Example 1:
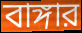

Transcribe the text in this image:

বাঙ্গার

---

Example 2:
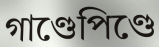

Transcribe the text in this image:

গাণ্ডেপিণ্ডে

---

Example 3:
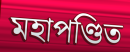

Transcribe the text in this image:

মহাপণ্ডিত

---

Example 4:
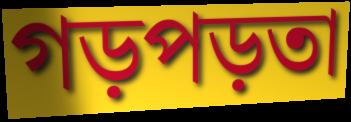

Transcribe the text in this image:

গড়পড়তা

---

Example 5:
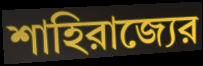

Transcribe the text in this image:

শাহিরাজ্যের